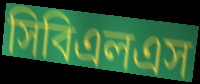
সিবিএলএস